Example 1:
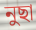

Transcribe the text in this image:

নুছা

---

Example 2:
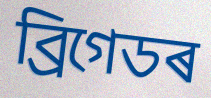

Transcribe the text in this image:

ব্ৰিগেডৰ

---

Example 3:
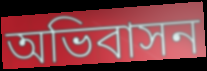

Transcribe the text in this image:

অভিবাসন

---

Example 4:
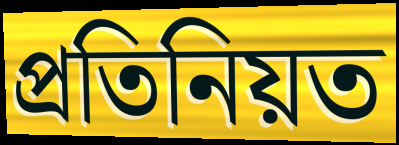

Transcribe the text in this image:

প্ৰতিনিয়ত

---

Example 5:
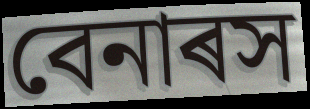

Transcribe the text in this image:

বেনাৰস